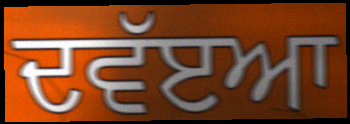
ਦਵੱੲਆ